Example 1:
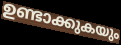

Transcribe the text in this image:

ഉണ്ടാക്കുകയും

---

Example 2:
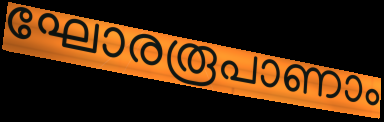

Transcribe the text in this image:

ഘോരരൂപാണാം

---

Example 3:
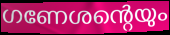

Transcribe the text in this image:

ഗണേശന്റെയും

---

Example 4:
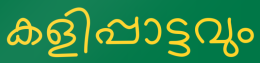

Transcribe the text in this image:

കളിപ്പാട്ടവും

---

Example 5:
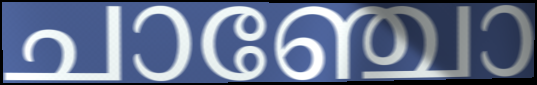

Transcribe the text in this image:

ചാഞ്ചോ